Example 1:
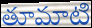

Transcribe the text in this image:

తూమాటి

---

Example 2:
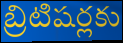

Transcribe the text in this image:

బ్రిటిషర్లకు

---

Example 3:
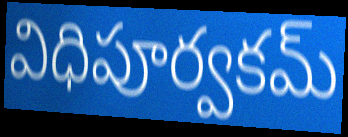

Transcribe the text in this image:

విధిపూర్వకమ్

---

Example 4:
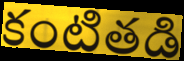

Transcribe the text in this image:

కంటితడి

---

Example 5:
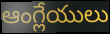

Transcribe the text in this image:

ఆంగ్లేయులు